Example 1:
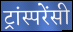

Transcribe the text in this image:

ट्रांस्परेंसी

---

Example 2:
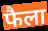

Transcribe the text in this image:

फैला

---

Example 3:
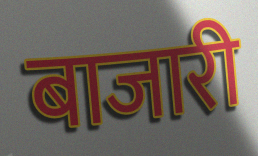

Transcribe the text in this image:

बाजारी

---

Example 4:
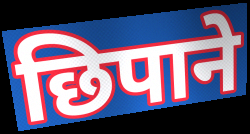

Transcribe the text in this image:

छिपाने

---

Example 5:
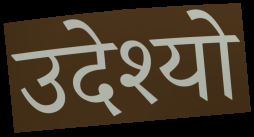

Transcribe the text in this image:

उदेश्यो